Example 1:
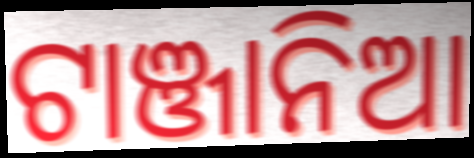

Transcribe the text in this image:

ଟାଞ୍ଜାନିଆ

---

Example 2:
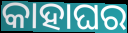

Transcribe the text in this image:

କାହାଘର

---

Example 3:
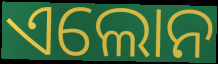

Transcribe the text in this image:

ଏଲୋନ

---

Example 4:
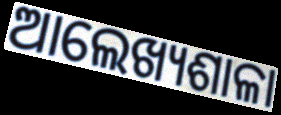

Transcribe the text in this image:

ଆଲେଖ୍ୟଶାଳା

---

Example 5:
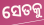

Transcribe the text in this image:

ସେତକୁ